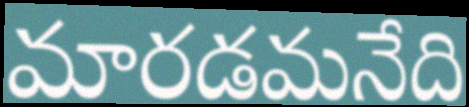
మారడమనేది